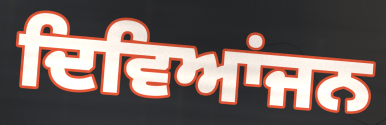
ਦਿਵਿਆਂਜਨ